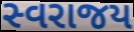
સ્વરાજય